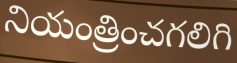
నియంత్రించగలిగి